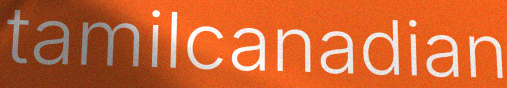
tamilcanadian